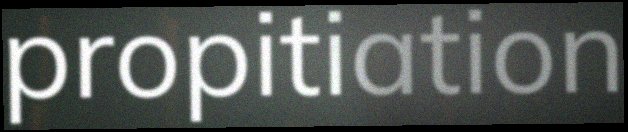
propitiation